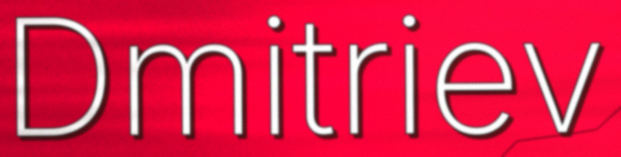
Dmitriev